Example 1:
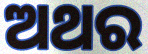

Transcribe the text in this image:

ଅଥର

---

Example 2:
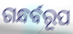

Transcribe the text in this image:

ଗନ୍ଧର୍ବରୂପ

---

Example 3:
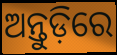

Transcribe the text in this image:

ଅନ୍ତୁଡ଼ିରେ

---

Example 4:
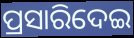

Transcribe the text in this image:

ପ୍ରସାରିଦେଇ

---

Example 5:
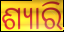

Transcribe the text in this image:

ଶ୍ୟାରି